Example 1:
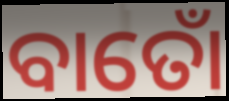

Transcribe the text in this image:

ବାତୋଁ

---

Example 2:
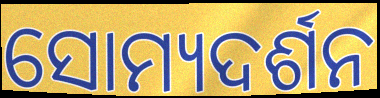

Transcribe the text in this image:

ସୋମ୍ଯଦର୍ଶନ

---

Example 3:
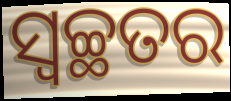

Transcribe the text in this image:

ସ୍ଵଚ୍ଛତର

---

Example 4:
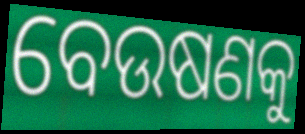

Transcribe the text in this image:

ବେଉଷଣକୁ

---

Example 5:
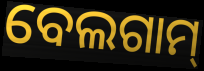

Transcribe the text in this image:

ବେଲଗାମ୍